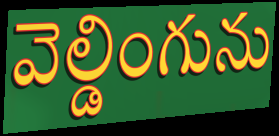
వెల్డింగును